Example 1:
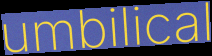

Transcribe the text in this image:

umbilical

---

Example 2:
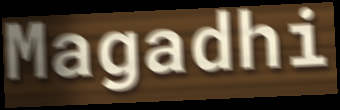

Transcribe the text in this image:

Magadhi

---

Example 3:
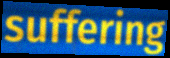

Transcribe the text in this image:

suffering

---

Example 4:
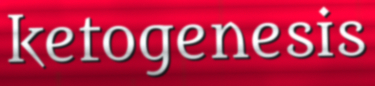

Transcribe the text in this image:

ketogenesis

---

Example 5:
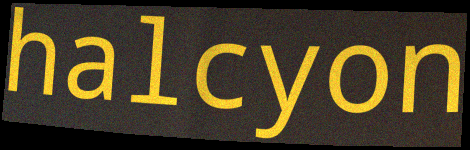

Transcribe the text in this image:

halcyon